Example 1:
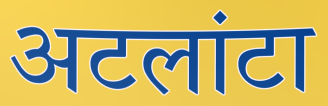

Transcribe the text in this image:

अटलांटा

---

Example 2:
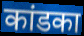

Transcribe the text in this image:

कांडका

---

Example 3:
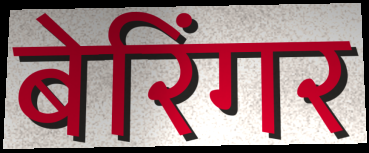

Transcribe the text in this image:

बेरिंगर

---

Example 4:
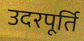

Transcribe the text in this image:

उदरपूर्ति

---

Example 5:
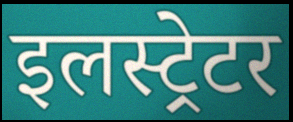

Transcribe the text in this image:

इलस्ट्रेटर